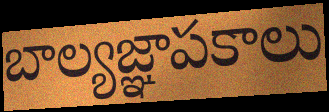
బాల్యజ్ఞాపకాలు